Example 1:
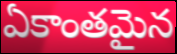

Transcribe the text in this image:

ఏకాంతమైన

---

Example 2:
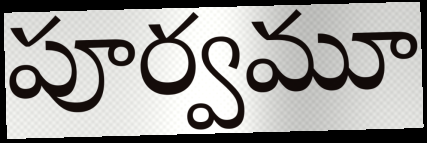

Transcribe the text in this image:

పూర్వమూ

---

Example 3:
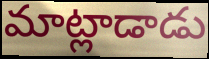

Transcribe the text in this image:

మాట్లాడాడు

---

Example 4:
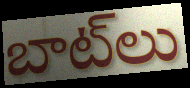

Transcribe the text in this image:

బాట్‌లు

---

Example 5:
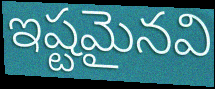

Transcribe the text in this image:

ఇష్టమైనవి